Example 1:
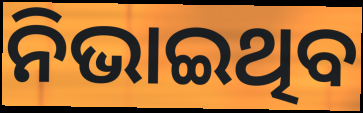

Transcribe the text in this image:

ନିଭାଇଥିବ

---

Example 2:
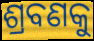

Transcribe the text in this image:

ଶ୍ରବଣକୁ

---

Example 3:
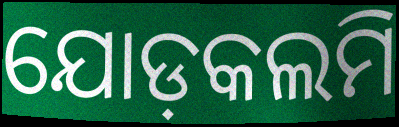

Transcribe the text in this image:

ଯୋଡ଼କଲମି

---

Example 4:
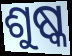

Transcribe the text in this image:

ଶୁଷ୍କ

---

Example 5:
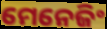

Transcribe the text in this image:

ମେନେଜିଂ